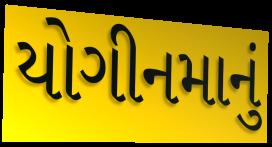
યોગીનમાનું